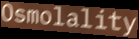
Osmolality